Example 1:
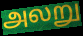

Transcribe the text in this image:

அலறு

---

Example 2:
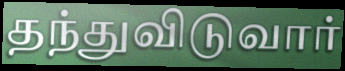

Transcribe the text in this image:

தந்துவிடுவார்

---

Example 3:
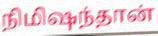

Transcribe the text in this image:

நிமிஷந்தான்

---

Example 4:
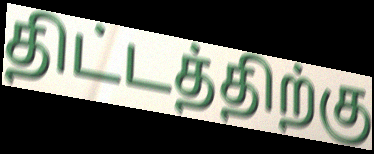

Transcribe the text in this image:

திட்டத்திற்கு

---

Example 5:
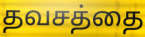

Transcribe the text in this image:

தவசத்தை